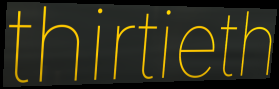
thirtieth